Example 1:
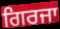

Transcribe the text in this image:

ਗਿਰਜਾ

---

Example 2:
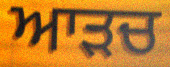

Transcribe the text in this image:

ਆੜਚ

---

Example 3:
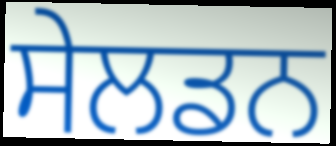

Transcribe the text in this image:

ਸੇਲਡਨ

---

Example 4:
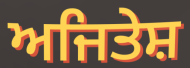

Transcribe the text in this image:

ਅਜਿਤੇਸ਼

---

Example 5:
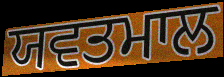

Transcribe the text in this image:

ਯਵਤਮਾਲ